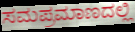
ಸಮಪ್ರಮಾಣದಲ್ಲಿ